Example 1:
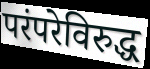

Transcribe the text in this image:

परंपरेविरुद्ध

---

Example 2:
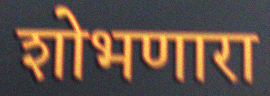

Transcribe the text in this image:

शोभणारा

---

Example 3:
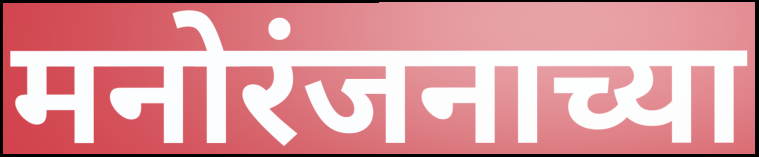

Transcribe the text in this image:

मनोरंजनाच्या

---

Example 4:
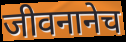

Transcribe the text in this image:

जीवनानेच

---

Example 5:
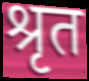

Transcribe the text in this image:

श्रृत